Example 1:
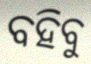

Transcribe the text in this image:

ବହିବୁ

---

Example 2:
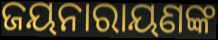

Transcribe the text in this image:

ଜୟନାରାୟଣଙ୍କ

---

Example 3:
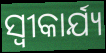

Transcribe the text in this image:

ସ୍ଵୀକାର୍ଯ୍ୟ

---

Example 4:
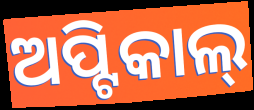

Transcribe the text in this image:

ଅପ୍ଟିକାଲ୍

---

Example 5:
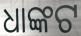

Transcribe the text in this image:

ଧାଙ୍କଟ